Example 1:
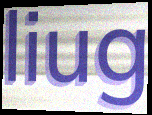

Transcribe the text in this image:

liug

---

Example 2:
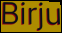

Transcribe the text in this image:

Birju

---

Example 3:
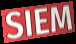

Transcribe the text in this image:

SIEM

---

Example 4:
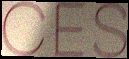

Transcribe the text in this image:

CES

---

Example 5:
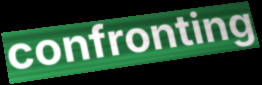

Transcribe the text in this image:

confronting